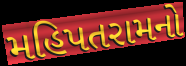
મહિપતરામનો